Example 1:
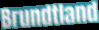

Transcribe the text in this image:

Brundtland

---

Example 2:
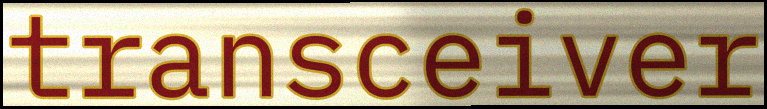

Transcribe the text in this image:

transceiver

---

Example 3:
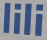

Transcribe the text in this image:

lili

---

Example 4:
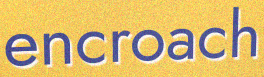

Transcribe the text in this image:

encroach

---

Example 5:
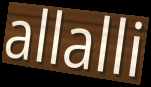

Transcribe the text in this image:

allalli